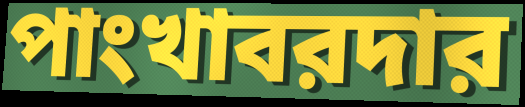
পাংখাবরদার